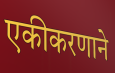
एकीकरणाने